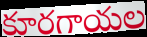
కూరగాయల